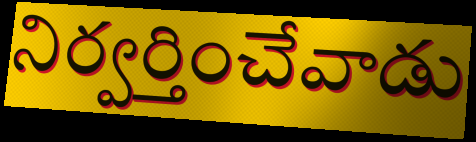
నిర్వర్తించేవాడు